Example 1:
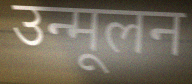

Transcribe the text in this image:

उन्मूलन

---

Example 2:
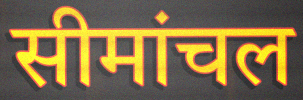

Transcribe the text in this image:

सीमांचल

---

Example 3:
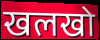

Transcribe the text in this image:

खलखो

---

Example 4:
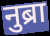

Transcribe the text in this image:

नुब्रा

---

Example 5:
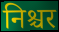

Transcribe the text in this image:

निश्चर